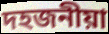
দহজনীয়া